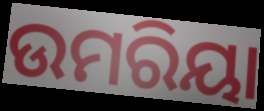
ଉମରିୟା